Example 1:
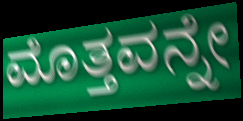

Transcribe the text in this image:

ಮೊತ್ತವನ್ನೇ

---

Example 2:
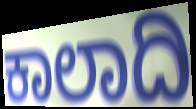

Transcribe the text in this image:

ಕಾಲಾದಿ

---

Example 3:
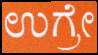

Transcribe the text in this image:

ಉಗ್ರೇ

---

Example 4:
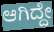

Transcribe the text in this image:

ಆಗಿದ್ದೇ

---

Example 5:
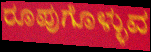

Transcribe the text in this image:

ರೂಪುಗೊಳ್ಳುವ